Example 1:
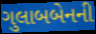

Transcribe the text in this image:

ગુલાબબેનની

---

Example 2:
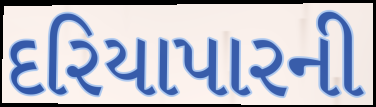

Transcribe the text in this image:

દરિયાપારની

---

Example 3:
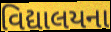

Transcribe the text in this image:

વિદ્યાલયના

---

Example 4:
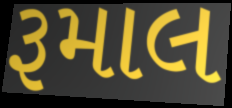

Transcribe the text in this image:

રૂમાલ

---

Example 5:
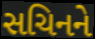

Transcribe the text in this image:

સચિનને